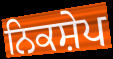
ਨਿਕਸ਼ੇਪ